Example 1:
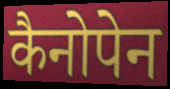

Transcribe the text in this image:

कैनोपेन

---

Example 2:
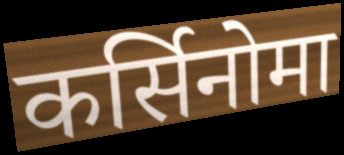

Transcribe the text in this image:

कर्सिनोमा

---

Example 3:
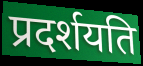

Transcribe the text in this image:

प्रदर्शयति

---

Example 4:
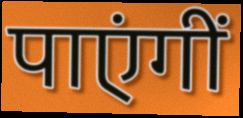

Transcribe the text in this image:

पाएंगीं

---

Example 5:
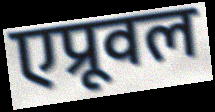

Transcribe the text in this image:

एप्रूवल